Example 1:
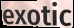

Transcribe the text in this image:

exotic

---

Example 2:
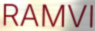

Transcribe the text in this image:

RAMVI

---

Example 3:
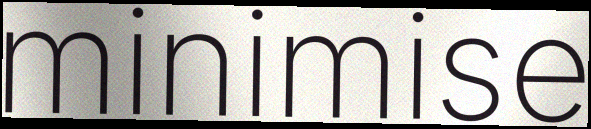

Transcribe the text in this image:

minimise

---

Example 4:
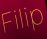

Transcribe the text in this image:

Filip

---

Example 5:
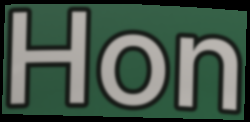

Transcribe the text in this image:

Hon